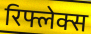
रिफ्लेक्स